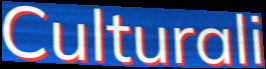
Culturali